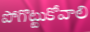
పోగొట్టుకోవాలి